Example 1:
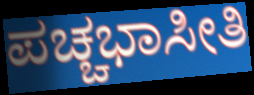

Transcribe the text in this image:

ಪಚ್ಚಭಾಸೀತಿ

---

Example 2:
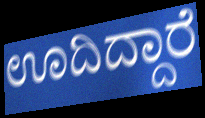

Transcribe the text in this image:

ಊದಿದ್ದಾರೆ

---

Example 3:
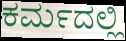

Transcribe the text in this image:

ಕರ್ಮದಲ್ಲಿ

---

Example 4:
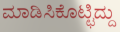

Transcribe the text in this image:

ಮಾಡಿಸಿಕೊಟ್ಟಿದ್ದು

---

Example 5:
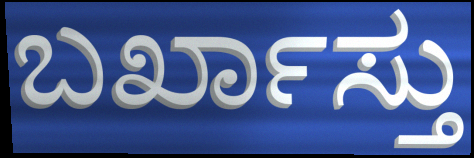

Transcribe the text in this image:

ಬರ್ಖಾಸ್ತು